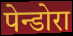
पेन्डोरा